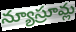
న్యూస్రూమ్ల